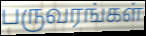
பருவரங்கள்